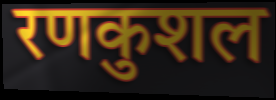
रणकुशल